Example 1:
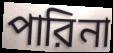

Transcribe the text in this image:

পারিনা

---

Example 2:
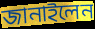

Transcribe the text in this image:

জানাইলেন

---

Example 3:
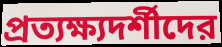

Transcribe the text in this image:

প্রত্যক্ষ্যদর্শীদের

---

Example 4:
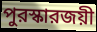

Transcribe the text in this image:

পুরস্কারজয়ী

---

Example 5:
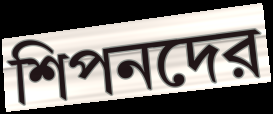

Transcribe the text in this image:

শিপনদের